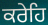
ਕਰੇਹਿ